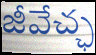
జీవేచ్ఛ